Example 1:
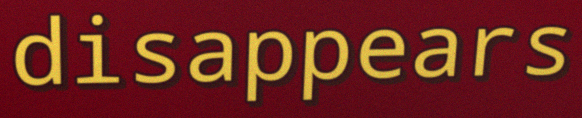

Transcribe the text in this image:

disappears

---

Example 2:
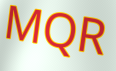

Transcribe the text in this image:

MQR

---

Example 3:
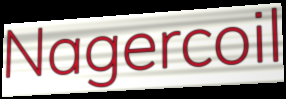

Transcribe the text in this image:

Nagercoil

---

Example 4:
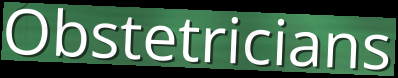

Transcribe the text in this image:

Obstetricians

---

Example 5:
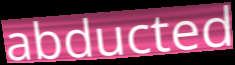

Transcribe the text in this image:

abducted